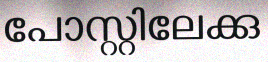
പോസ്റ്റിലേക്കു